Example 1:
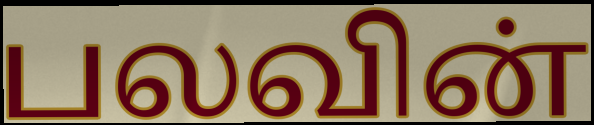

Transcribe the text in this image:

பலவின்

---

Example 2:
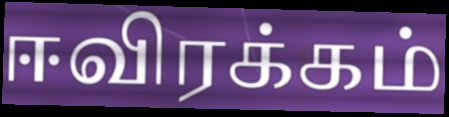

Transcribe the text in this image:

ஈவிரக்கம்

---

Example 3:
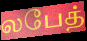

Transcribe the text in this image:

லபேத்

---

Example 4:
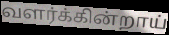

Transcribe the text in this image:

வளர்க்கின்றாய்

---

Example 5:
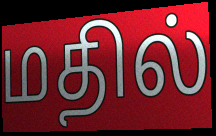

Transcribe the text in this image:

மதில்